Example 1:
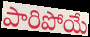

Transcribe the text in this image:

పారిపోయే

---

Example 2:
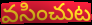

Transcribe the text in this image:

వసించుట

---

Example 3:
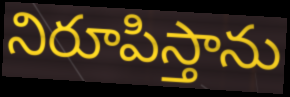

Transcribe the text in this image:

నిరూపిస్తాను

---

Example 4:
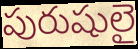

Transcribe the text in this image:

పురుషులై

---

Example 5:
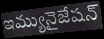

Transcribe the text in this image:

ఇమ్యునైజేషన్